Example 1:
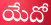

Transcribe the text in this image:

యేదో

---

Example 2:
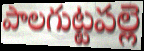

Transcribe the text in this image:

పాలగుట్టపల్లె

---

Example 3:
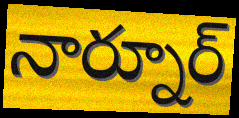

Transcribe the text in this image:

నార్నూర్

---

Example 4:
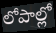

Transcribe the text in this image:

లోపాల్లో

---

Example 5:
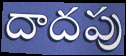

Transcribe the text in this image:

దాదపు